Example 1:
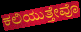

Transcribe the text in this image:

ಕಲಿಯುತ್ತೇವೊ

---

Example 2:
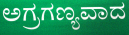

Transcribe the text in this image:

ಅಗ್ರಗಣ್ಯವಾದ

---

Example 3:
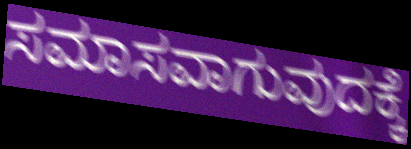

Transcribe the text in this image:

ಸಮಾಸವಾಗುವುದಕ್ಕೆ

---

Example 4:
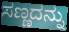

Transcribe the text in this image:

ಸಣ್ಣದನ್ನು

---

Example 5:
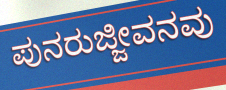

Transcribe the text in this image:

ಪುನರುಜ್ಜೀವನವು